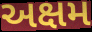
અક્ષમ